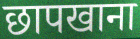
छापखाना